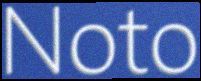
Noto